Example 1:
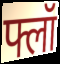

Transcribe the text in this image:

फ्लॉ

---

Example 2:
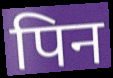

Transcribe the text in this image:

पिन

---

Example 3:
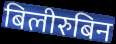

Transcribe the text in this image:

बिलीरुबिन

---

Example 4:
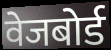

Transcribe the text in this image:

वेजबोर्ड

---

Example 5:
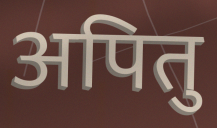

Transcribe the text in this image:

अपितु